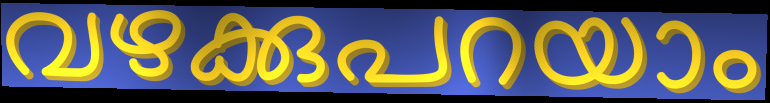
വഴക്കുപറയാം